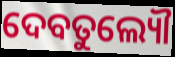
ଦେବତୁଲ୍ୟୌ